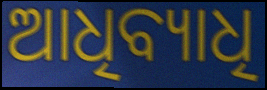
ଆଧିବ୍ୟାଧି